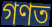
গণত